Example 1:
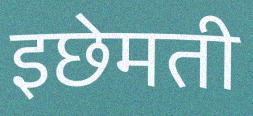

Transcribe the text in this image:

इछेमती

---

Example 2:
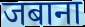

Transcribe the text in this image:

जबाना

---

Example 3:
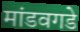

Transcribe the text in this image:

मांडवगडे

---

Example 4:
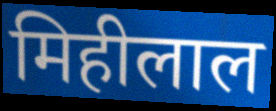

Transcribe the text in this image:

मिहीलाल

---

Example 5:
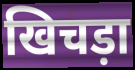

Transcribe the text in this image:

खिचड़ा